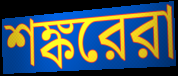
শঙ্করেরা